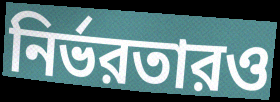
নির্ভরতারও